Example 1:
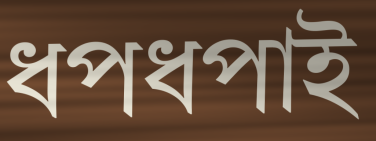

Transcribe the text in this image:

ধপধপাই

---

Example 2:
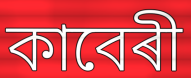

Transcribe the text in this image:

কাবেৰী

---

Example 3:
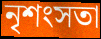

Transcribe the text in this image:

নৃশংসতা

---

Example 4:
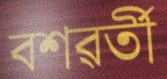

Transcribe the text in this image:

বশৱৰ্তী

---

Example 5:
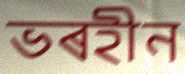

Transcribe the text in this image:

ভৰহীন